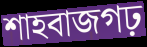
শাহবাজগঢ়